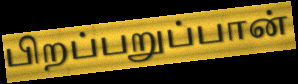
பிறப்பறுப்பான்